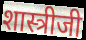
शास्त्रीजी